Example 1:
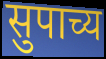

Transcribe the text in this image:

सुपाच्य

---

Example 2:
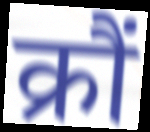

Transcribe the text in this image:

क्रौं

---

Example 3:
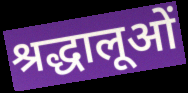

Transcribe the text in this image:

श्रद्धालूओं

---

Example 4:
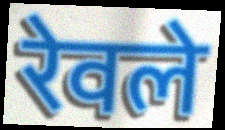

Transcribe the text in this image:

रेवले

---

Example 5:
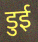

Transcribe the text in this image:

डुई